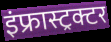
इंफ्रास्ट्रक्टर